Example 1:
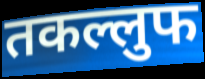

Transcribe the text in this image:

तकल्लुफ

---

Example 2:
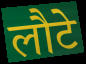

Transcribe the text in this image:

लौटे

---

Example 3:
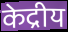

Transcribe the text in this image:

केद्रीय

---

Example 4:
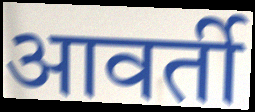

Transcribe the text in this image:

आवर्ती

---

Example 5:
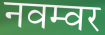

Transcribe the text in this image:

नवम्वर